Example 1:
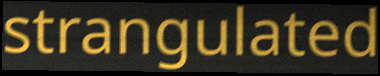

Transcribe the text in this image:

strangulated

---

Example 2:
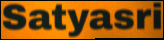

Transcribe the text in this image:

Satyasri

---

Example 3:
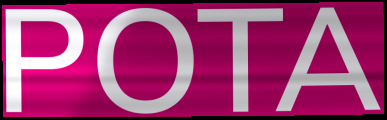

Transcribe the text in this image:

POTA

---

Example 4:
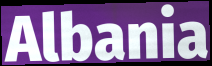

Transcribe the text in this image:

Albania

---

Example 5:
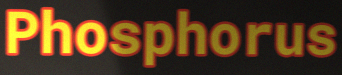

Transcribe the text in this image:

Phosphorus